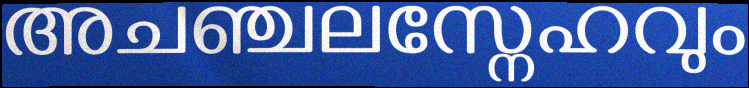
അചഞ്ചലസ്നേഹവും